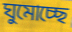
ঘুমোচ্ছে